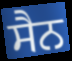
ਸੈਨ